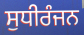
ਸੁਧੀਰੰਜਨ